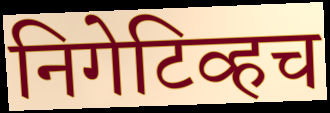
निगेटिव्हच